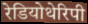
रेडियोथेरिपी